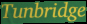
Tunbridge